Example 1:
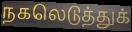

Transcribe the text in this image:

நகலெடுத்துக்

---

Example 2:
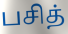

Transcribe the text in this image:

பசித்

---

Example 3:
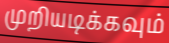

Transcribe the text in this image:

முறியடிக்கவும்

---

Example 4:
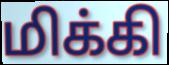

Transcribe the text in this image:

மிக்கி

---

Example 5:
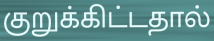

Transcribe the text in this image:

குறுக்கிட்டதால்